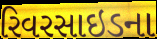
રિવરસાઇડના